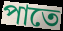
পাতে